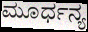
ಮೂರ್ಧನ್ಯ